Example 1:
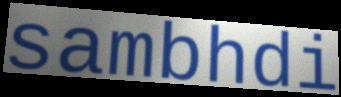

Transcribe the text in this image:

sambhdi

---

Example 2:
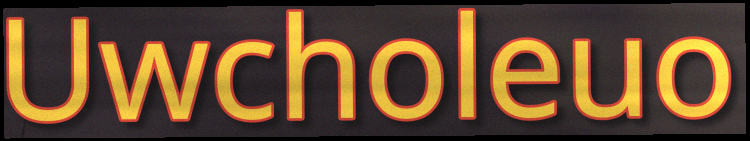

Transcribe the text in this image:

Uwcholeuo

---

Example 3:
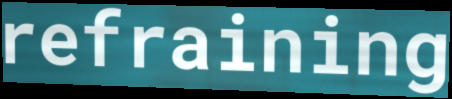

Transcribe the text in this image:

refraining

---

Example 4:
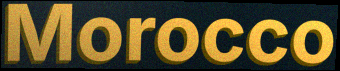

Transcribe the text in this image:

Morocco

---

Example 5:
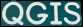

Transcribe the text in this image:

QGIS